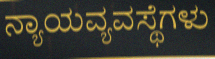
ನ್ಯಾಯವ್ಯವಸ್ಥೆಗಳು